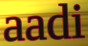
aadi